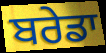
ਬਰੇਡਾ